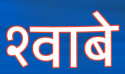
श्वाबे